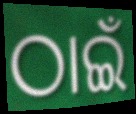
ଠାଇଁ